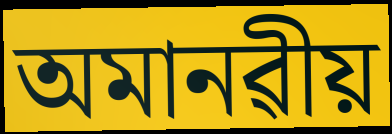
অমানৱীয়